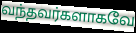
வந்தவர்களாகவே